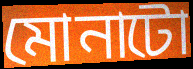
মোনাটো